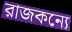
রাজকন্যে